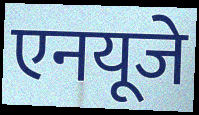
एनयूजे